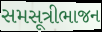
સમસૂત્રીભાજન